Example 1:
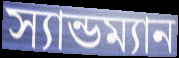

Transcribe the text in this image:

স্যান্ডম্যান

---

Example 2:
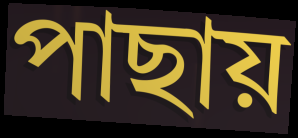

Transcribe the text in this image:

পাছায়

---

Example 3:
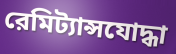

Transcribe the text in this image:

রেমিট্যান্সযোদ্ধা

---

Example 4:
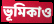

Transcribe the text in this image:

ভূমিকাও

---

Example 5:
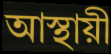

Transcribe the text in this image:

আস্থায়ী